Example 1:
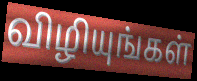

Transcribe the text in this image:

விழியுங்கள்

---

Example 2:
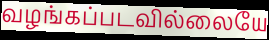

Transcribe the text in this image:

வழங்கப்படவில்லையே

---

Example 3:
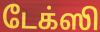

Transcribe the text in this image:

டேக்ஸி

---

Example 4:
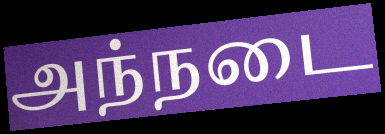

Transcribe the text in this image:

அந்நடை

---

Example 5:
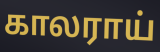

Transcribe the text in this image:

காலராய்